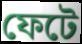
ফেটে